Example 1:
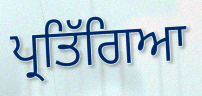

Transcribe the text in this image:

ਪ੍ਰਤਿੱਗਿਆ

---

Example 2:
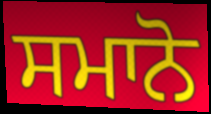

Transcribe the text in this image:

ਸਮਾਨੋ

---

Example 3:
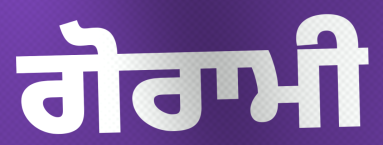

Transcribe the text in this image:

ਗੋਰਾਮੀ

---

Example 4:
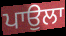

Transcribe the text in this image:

ਪਾਉਲਾ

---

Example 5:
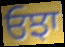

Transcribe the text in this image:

ਓਝਾ